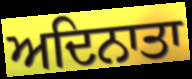
ਅਦਿਨਾਤਾ